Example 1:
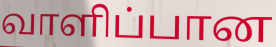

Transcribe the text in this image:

வாளிப்பான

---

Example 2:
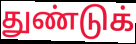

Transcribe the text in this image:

துண்டுக்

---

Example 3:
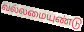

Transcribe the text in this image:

வல்லமையுண்டு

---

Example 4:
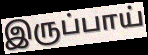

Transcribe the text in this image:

இருப்பாய்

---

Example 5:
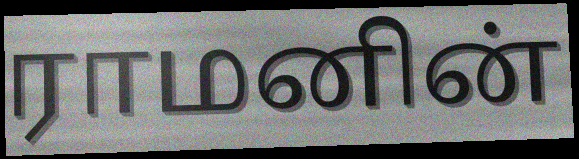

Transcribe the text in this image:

ராமனின்